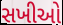
સખીઓ